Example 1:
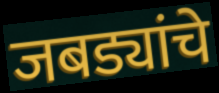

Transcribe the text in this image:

जबड्यांचे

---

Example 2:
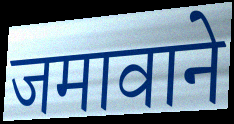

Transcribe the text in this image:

जमावाने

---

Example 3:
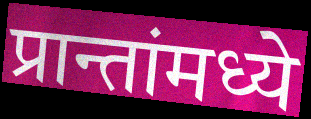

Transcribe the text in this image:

प्रान्तांमध्ये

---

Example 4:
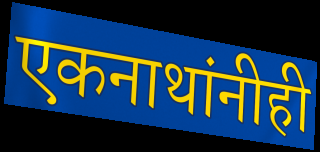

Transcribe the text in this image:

एकनाथांनीही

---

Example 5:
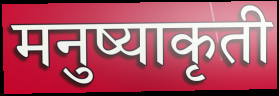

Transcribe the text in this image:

मनुष्याकृती